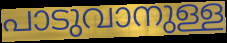
പാടുവാനുള്ള